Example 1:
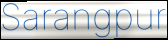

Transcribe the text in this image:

Sarangpur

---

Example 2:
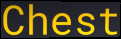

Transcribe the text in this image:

Chest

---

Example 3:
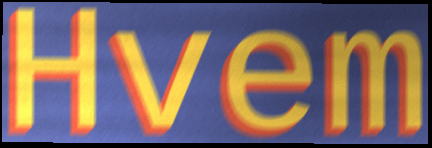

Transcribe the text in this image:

Hvem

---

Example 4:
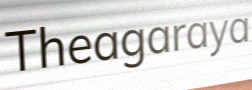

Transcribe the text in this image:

Theagaraya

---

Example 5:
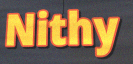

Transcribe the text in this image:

Nithy